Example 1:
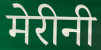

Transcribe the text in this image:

मेरीनी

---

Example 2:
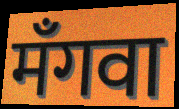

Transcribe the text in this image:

मँगवा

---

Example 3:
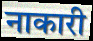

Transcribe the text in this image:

नाकारी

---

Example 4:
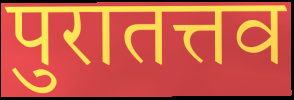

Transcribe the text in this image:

पुरातत्तव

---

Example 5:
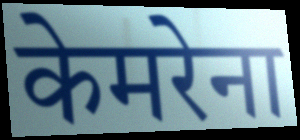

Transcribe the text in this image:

केमरेना